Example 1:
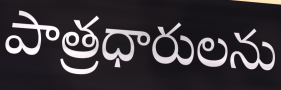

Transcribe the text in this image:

పాత్రధారులను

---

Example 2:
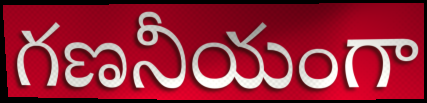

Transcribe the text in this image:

గణనీయంగా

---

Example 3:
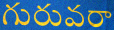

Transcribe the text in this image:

గురువరా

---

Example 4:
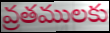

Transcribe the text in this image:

వ్రతములకు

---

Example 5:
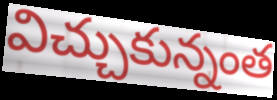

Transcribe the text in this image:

విచ్చుకున్నంత